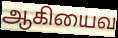
ஆகியைவ